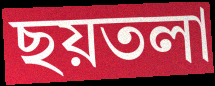
ছয়তলা